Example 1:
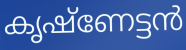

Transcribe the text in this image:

കൃഷ്ണേട്ടൻ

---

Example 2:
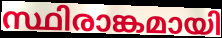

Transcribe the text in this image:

സ്ഥിരാങ്കമായി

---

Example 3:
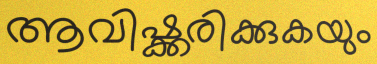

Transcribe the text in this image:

ആവിഷ്ക്കരിക്കുകയും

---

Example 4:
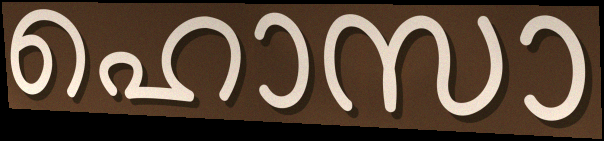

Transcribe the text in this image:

ഹൊസാ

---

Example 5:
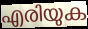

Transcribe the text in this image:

എരിയുക